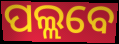
ପଲ୍ଲବେ